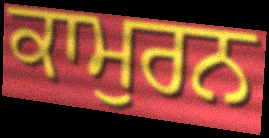
ਕਾਮੁਰਨ